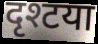
दृश्टया